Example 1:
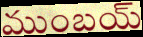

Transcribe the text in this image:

ముంబయ్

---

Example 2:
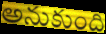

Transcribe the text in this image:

అనుకుంది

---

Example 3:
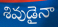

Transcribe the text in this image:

శివుడైనా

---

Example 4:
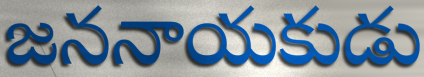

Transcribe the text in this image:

జననాయకుడు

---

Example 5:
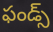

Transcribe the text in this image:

ఫండ్స్